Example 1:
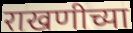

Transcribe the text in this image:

राखणीच्या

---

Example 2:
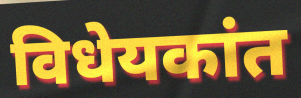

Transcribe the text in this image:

विधेयकांत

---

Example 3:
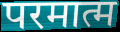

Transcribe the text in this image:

परमात्म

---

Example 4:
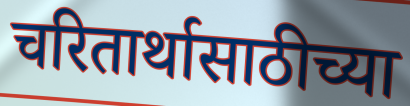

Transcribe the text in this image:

चरितार्थासाठीच्या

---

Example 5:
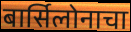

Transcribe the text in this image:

बार्सिलोनाचा